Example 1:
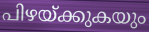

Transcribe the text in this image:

പിഴയ്ക്കുകയും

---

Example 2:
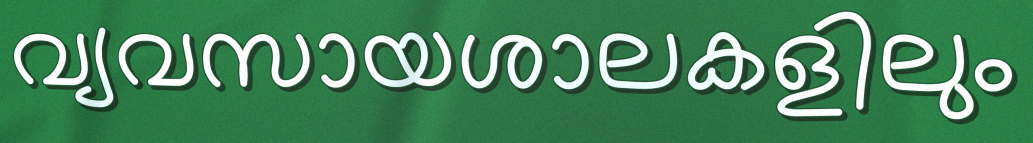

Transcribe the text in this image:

വ്യവസായശാലകളിലും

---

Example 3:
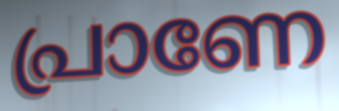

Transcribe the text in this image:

പ്രാണേ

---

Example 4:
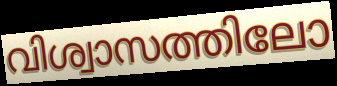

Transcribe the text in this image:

വിശ്വാസത്തിലോ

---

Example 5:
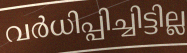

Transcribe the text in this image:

വർധിപ്പിച്ചിട്ടില്ല